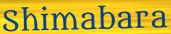
Shimabara